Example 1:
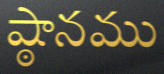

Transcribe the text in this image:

ష్ఠానము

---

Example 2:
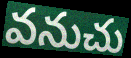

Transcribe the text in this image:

వనుచు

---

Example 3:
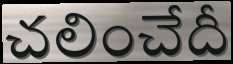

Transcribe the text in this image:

చలించేదీ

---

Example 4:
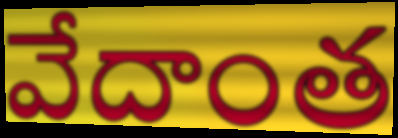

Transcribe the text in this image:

వేదాంత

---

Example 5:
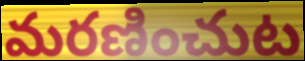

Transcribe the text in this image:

మరణించుట